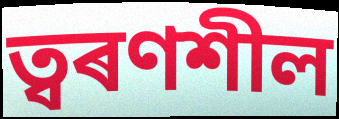
ত্বৰণশীল